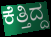
ಕೆತ್ತಿದ್ದ